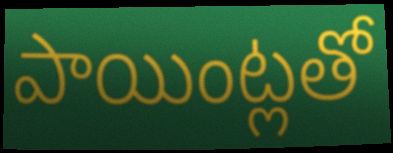
పాయింట్లతో